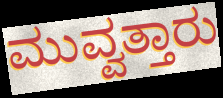
ಮುವ್ವತ್ತಾರು